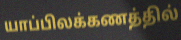
யாப்பிலக்கணத்தில்